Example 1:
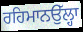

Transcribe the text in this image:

ਰਹਿਮਾਨਉੱਲ੍ਹਾ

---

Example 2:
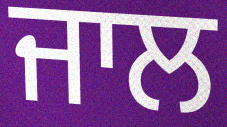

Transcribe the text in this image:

ਜਾਲ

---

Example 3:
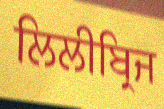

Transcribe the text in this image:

ਲਿਲੀਬ੍ਰਿਜ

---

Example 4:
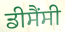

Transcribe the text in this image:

ਡੀਸੈਂਸੀ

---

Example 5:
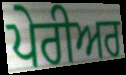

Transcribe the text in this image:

ਪੇਰੀਅਰ